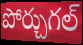
పోర్చుగల్